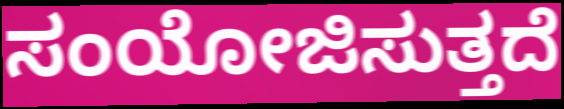
ಸಂಯೋಜಿಸುತ್ತದೆ